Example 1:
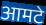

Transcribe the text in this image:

आमटे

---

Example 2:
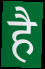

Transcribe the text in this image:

है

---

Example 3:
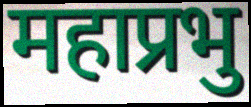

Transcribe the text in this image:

महाप्रभु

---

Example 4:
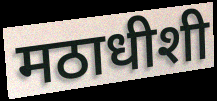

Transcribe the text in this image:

मठाधीशी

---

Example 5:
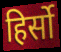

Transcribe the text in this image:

हिर्सो